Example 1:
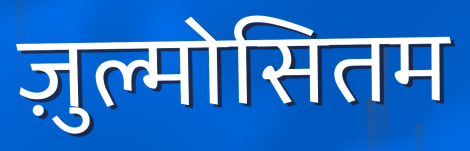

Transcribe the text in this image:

ज़ुल्मोसितम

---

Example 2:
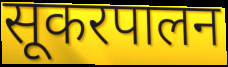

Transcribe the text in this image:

सूकरपालन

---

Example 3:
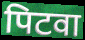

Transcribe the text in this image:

पिटवा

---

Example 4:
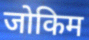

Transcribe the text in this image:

जोकिम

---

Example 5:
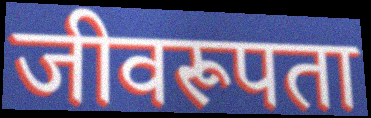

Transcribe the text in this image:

जीवरूपता